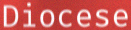
Diocese